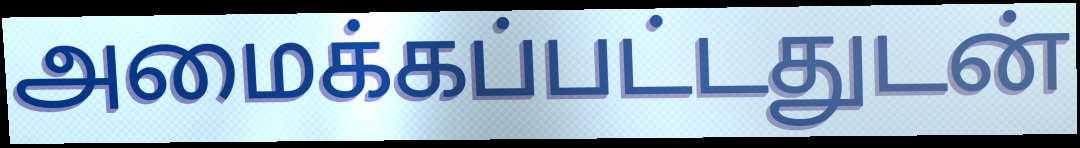
அமைக்கப்பட்டதுடன்